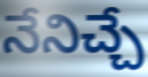
నేనిచ్చే